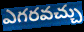
ఎగరవచ్చు